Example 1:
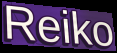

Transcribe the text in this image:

Reiko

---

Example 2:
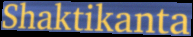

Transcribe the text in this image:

Shaktikanta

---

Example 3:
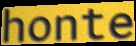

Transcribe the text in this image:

honte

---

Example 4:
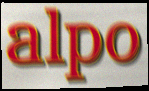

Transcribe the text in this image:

alpo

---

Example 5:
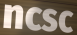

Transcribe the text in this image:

ncsc